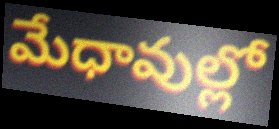
మేధావుల్లో